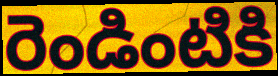
రెండింటికి